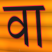
वा